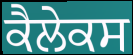
ਕੈਲੇਕਸ